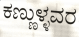
ಕಣ್ಣುಳ್ಳವರ